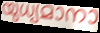
യുധ്യമാനാ